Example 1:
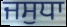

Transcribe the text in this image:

ਜਸੁਧਾ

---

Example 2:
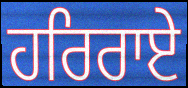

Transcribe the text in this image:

ਹਰਿਰਾਏ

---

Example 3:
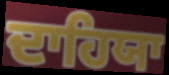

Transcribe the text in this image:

ਦਾਹਿਯਾ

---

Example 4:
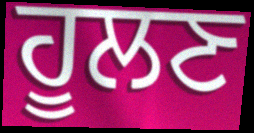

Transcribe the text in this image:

ਹੂਲਣ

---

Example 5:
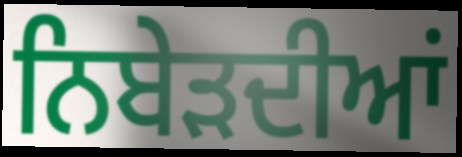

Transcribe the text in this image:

ਨਿਬੇੜਦੀਆਂ